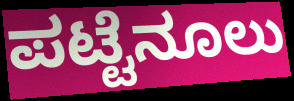
ಪಟ್ಟೆನೂಲು